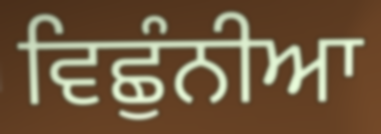
ਵਿਛੁੰਨੀਆ